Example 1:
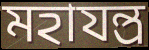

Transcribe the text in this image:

মহাযন্ত্র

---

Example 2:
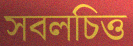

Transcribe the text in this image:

সবলচিত্ত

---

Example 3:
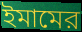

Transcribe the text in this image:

ইমামের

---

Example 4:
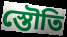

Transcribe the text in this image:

স্তৌতি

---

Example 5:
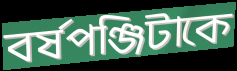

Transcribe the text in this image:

বর্ষপঞ্জিটাকে